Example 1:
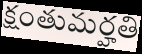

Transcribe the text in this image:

క్షంతుమర్హతి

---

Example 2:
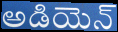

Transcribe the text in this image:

అడియెన్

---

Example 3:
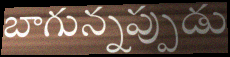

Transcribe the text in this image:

బాగున్నప్పుడు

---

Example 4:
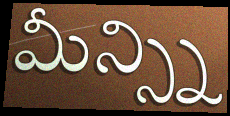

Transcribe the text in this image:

మీన్స్ని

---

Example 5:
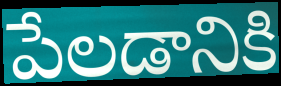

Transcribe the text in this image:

పేలడానికి